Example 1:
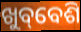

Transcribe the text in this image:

ଖୁବ୍‌ବେଶି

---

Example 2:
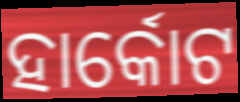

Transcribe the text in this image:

ହାର୍କୋଟ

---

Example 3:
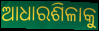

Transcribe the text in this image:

ଆଧାରଶିଳାକୁ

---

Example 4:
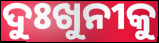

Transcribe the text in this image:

ଦୁଃଖୁନୀକୁ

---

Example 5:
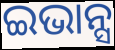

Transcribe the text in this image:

ଇଭାନ୍ସ